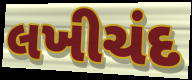
લખીચંદ